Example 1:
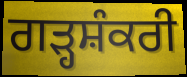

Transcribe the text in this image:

ਗੜ੍ਹਸ਼ੰਕਰੀ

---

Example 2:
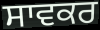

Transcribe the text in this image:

ਸਾਵਕਰ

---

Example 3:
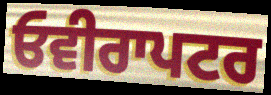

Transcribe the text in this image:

ਓਵੀਰਾਪਟਰ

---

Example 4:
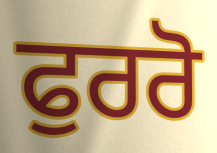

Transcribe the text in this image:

ਫੁਰਰੋ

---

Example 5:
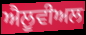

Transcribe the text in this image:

ਐਲੂਵੀਅਲ